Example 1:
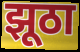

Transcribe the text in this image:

झूठा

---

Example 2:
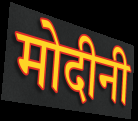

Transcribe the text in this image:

मोदीनी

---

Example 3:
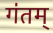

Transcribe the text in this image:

ग॑तम्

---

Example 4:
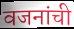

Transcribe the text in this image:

वजनांची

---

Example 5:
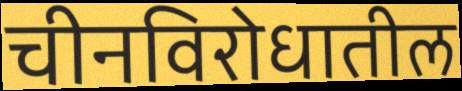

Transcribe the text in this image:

चीनविरोधातील